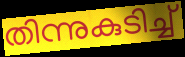
തിന്നുകുടിച്ച്